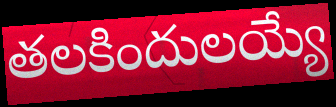
తలకిందులయ్యే